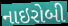
નાઇરોબી